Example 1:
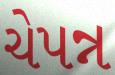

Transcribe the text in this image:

ચેપન્ન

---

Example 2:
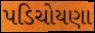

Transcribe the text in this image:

પડિચોયણા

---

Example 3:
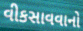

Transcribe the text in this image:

વીકસાવવાનો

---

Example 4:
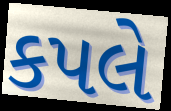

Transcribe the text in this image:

કપલે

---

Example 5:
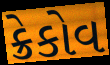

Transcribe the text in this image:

ક્રેકોવ